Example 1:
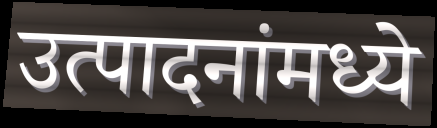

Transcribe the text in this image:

उत्पादनांमध्ये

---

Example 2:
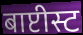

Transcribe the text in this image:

बाप्टीस्ट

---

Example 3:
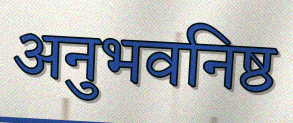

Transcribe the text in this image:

अनुभवनिष्ठ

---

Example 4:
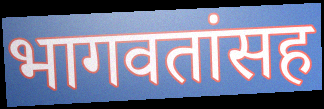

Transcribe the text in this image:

भागवतांसह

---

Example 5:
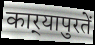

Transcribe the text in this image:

कार्यापुरतें